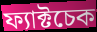
ফ্যাক্টচেক